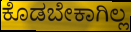
ಕೊಡಬೇಕಾಗಿಲ್ಲ